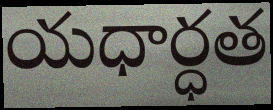
యధార్ధత